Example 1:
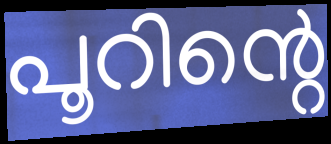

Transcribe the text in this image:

പൂറിന്റെ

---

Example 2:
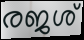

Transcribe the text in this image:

രജശ്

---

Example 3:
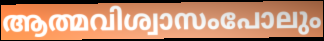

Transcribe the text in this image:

ആത്മവിശ്വാസംപോലും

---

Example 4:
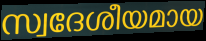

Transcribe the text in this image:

സ്വദേശീയമായ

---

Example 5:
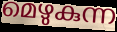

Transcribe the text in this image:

മെഴുകുന്ന